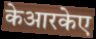
केआरकेए